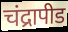
चंद्रापीड